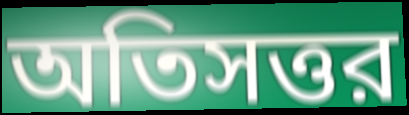
অতিসত্তর